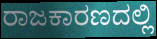
ರಾಜಕಾರಣದಲ್ಲಿ